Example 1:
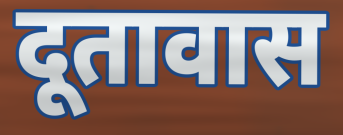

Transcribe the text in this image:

दूतावास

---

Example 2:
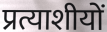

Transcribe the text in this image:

प्रत्याशीयों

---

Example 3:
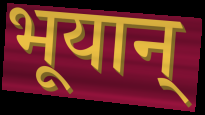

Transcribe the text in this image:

भूयान्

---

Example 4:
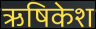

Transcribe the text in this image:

ऋषिकेश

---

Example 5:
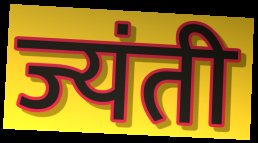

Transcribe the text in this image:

ज्यंती